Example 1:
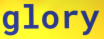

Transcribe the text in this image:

glory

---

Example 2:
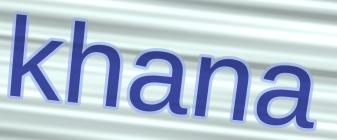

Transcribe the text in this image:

khana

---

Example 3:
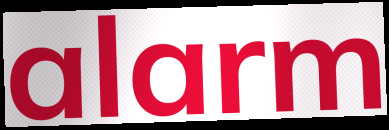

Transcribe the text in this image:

alarm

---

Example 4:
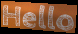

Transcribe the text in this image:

Hello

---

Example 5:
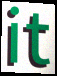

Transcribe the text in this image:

it